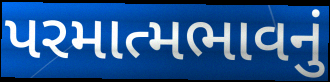
પરમાત્મભાવનું